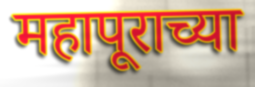
महापूराच्या